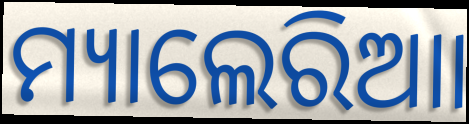
ମ୍ୟାଲେରିଆା